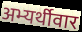
अभ्यर्थीवार